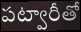
పట్వారీతో